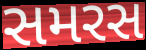
સમરસ